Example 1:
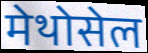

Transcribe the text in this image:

मेथोसेल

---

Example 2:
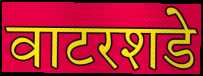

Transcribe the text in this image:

वाटरशडे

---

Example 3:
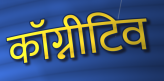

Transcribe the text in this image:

कॉग्नीटिव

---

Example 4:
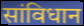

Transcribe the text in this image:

सांविधान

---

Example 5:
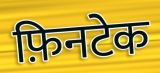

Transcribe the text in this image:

फ़िनटेक